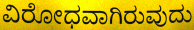
ವಿರೋಧವಾಗಿರುವುದು